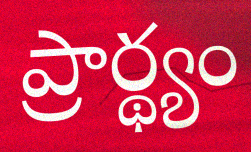
ప్రార్థ్యం